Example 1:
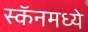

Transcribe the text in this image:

स्कॅनमध्ये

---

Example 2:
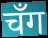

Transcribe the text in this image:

चँग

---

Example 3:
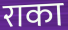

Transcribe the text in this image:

राका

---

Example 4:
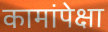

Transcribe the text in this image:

कामांपेक्षा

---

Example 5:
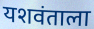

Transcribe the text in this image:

यशवंताला